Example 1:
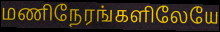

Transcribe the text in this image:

மணிநேரங்களிலேயே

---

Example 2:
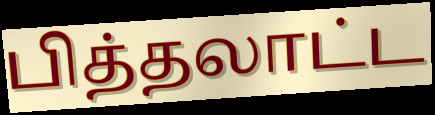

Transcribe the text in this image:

பித்தலாட்ட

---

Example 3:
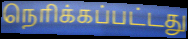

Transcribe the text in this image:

நெரிக்கப்பட்டது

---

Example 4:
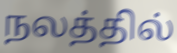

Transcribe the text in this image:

நலத்தில்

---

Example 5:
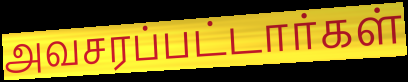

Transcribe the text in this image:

அவசரப்பட்டார்கள்